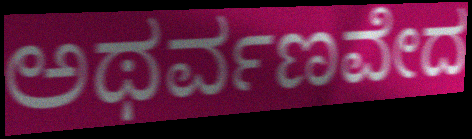
ಅಥರ್ವಣವೇದ